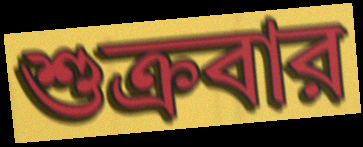
শুক্রবার